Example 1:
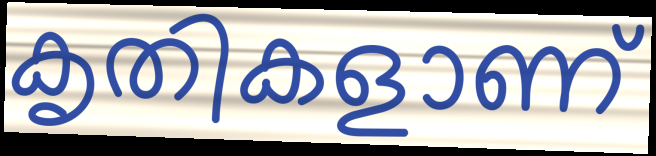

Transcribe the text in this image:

കൃതികളാണ്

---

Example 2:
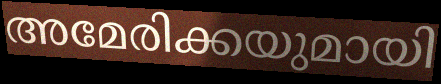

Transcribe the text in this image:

അമേരിക്കയുമായി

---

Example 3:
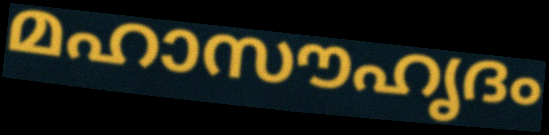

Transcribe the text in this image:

മഹാസൗഹൃദം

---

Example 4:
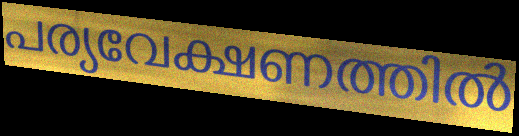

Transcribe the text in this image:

പര്യവേക്ഷണത്തിൽ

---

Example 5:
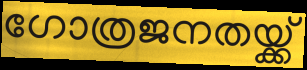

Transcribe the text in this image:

ഗോത്രജനതയ്ക്ക്